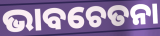
ଭାବଚେତନା